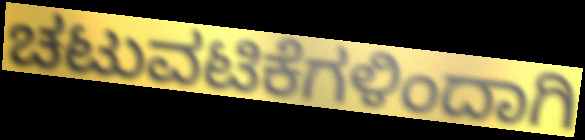
ಚಟುವಟಿಕೆಗಳಿಂದಾಗಿ